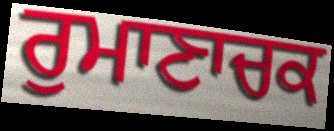
ਰੁਮਾਣਾਚਕ